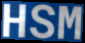
HSM